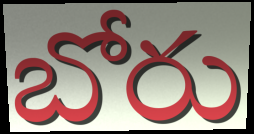
బోరు